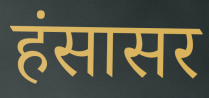
हंसासर